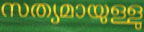
സത്യമായുള്ളു